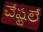
చేష్టలే